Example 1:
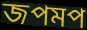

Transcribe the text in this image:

জপমপ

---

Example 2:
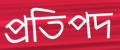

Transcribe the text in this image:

প্ৰতিপদ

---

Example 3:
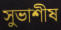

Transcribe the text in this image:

সুভাশীষ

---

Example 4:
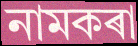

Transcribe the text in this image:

নামকৰা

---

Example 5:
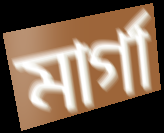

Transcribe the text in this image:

মাৰ্গা